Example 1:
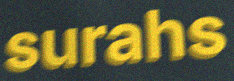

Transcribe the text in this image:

surahs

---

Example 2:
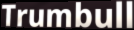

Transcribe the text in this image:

Trumbull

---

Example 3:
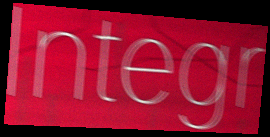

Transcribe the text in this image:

Integr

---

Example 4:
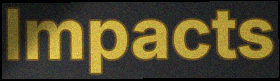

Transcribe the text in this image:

Impacts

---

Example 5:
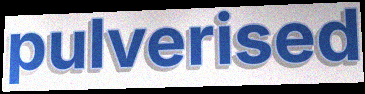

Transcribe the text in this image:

pulverised